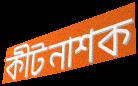
কীটনাশক